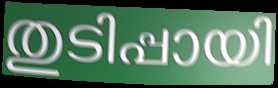
തുടിപ്പായി